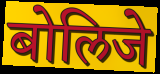
बोलिजे